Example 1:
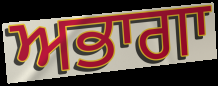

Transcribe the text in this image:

ਅਭਾਗਾ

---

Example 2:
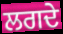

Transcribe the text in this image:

ਲਗਦੇ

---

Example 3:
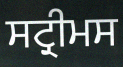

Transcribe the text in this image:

ਸਟ੍ਰੀਮਸ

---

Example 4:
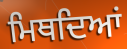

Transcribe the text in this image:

ਮਿਥਦਿਆਂ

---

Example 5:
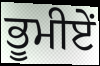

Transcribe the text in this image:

ਭੂਮੀਏਂ